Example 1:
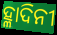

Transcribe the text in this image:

ହ୍ଳାଦିନୀ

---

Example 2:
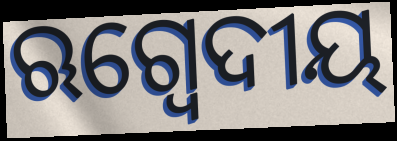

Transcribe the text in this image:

ଋଗ୍ବେଦୀୟ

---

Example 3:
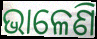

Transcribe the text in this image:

ଭାଳେଣି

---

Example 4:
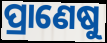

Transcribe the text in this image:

ପ୍ରାଣେଷୁ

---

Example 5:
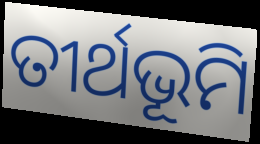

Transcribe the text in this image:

ତୀର୍ଥଭୂମି